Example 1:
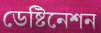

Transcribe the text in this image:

ডেষ্টিনেশন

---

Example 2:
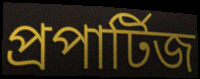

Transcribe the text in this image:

প্রপার্টিজ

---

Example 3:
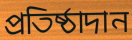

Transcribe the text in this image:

প্রতিষ্ঠাদান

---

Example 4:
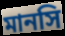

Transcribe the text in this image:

মানসি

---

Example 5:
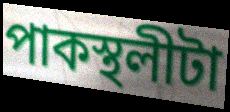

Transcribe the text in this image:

পাকস্থলীটা